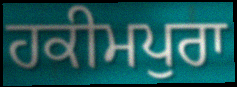
ਹਕੀਮਪੁਰਾ